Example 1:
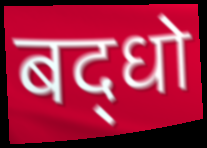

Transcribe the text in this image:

बद्धो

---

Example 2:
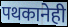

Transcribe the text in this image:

पथकानेही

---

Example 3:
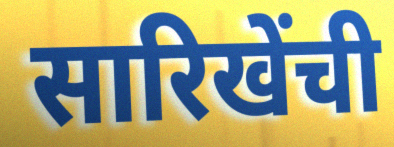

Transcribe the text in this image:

सारिखेंची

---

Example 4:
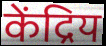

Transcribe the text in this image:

केंद्रिय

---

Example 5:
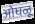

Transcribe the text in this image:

ओघळू